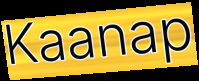
Kaanap